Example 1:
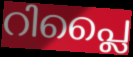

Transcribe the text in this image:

റിപ്ലൈ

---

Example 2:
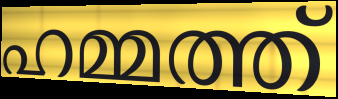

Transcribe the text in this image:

ഹമ്മത്ത്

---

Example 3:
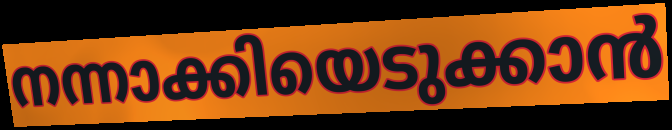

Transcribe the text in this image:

നന്നാക്കിയെടുക്കാൻ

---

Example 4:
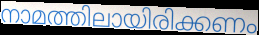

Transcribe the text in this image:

നാമത്തിലായിരിക്കണം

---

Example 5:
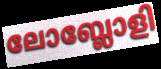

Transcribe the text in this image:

ലോബ്ലോളി